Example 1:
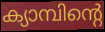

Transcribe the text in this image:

ക്യാമ്പിന്റെ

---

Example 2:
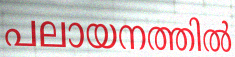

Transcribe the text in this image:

പലായനത്തിൽ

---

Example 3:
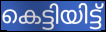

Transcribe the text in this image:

കെട്ടിയിട്ട്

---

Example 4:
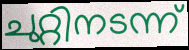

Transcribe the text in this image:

ചുറ്റിനടന്ന്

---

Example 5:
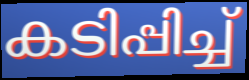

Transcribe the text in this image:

കടിപ്പിച്ച്